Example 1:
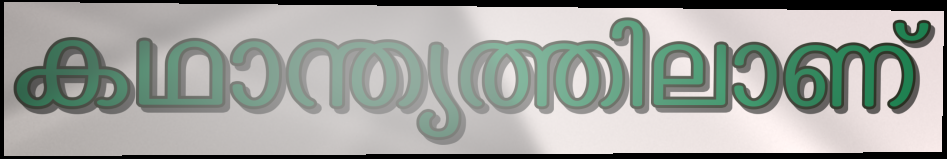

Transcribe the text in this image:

കഥാന്ത്യത്തിലാണ്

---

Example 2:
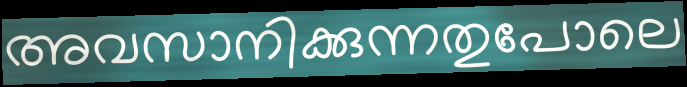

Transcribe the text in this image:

അവസാനിക്കുന്നതുപോലെ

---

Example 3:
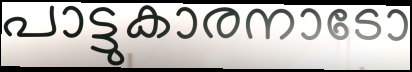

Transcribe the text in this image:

പാട്ടുകാരനാടോ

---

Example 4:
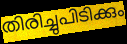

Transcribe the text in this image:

തിരിച്ചുപിടിക്കും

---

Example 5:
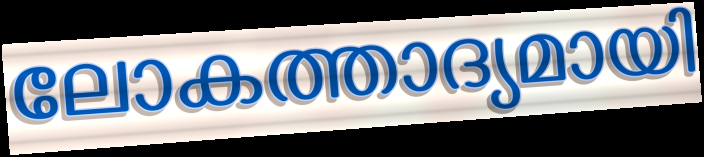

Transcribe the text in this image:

ലോകത്താദ്യമായി